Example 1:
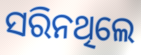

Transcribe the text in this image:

ସରିନଥିଲେ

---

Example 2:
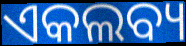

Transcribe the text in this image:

ଏକଲବ୍ୟ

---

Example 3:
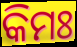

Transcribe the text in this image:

କିମଃ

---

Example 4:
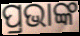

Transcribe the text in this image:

ପ୍ରଭାଙ୍କ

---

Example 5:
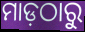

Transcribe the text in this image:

ମାଡ଼ଠାରୁ